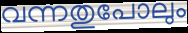
വന്നതുപോലും